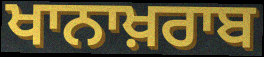
ਖਾਨਾਖ਼ਰਾਬ